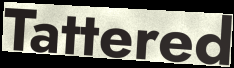
Tattered